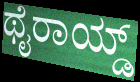
ಥೈರಾಯ್ಡ್